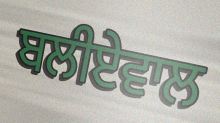
ਬਲੀਏਵਾਲ